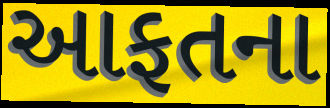
આફતના